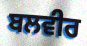
ਬਲਵੀਰ